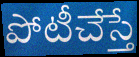
పోటీచేస్తే